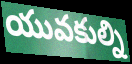
యువకుల్ని